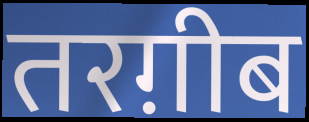
तरग़ीब